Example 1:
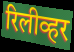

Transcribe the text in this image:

रिलीव्हर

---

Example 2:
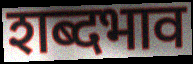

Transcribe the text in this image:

शब्दभाव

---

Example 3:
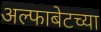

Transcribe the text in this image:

अल्फाबेटच्या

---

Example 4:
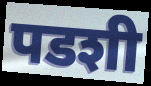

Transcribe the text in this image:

पडशी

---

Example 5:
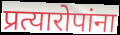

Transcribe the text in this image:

प्रत्यारोपांना